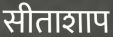
सीताशाप